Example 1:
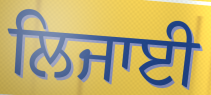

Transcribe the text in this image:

ਲਿਜਾਈ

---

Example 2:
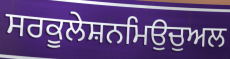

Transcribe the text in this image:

ਸਰਕੂਲੇਸ਼ਨਮਿਉਚੁਅਲ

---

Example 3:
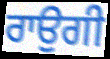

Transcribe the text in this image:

ਰਾਉਗੀ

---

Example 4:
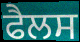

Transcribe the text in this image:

ਫੈਲਸ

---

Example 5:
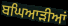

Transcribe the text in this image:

ਬਘਿਆੜੀਆਂ